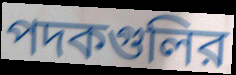
পদকগুলির